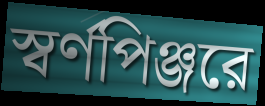
স্বর্ণপিঞ্জরে